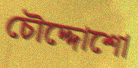
চৌদ্দোশো